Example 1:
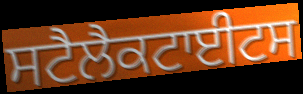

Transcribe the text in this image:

ਸਟੈਲੈਕਟਾਈਟਸ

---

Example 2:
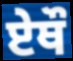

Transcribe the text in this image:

ਏਥੌ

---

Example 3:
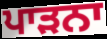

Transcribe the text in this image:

ਪਾੜਨਾ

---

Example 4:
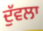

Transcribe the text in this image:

ਦੁੱਵਲਾ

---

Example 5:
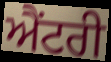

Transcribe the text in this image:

ਐਂਟਰੀ